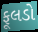
ફૂલડો